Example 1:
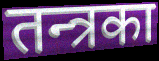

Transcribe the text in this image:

तन्त्रका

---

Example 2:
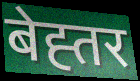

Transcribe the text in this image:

बेह्तर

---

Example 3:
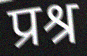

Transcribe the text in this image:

प्रश्र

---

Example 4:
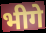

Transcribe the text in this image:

भीगे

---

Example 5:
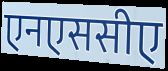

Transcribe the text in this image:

एनएससीए